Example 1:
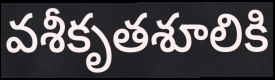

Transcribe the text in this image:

వశీకృతశూలికి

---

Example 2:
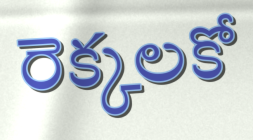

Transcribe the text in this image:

రెక్కలకో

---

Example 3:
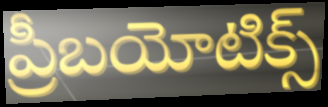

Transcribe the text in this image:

ప్రీబయోటిక్స్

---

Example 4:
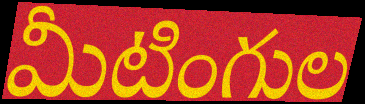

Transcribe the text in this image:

మీటింగుల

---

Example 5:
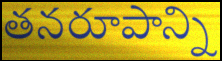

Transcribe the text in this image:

తనరూపాన్ని